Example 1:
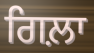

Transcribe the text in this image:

ਗਿਲ਼ਾ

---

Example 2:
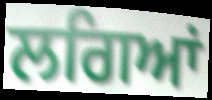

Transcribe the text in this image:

ਲਗਿਆਂ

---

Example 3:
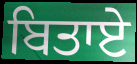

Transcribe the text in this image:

ਬਿਤਾਏ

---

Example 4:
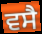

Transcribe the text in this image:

ਵਸੈ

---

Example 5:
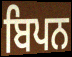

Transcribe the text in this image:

ਬਿਪਨ